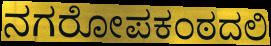
ನಗರೋಪಕಂಠದಲಿ